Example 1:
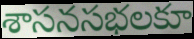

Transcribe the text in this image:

శాసనసభలకూ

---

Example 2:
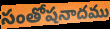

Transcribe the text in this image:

సంతోషనాదము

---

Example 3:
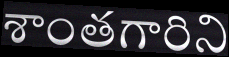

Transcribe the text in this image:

శాంతగారిని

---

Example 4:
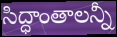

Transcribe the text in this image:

సిద్ధాంతాలన్నీ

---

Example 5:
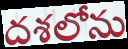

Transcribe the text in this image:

దశలోను